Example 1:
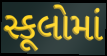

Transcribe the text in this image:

સ્કૂલોમાં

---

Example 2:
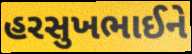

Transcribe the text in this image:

હરસુખભાઈને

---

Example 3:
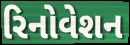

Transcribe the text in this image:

રિનોવેશન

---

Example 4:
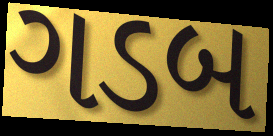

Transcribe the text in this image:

ગડબ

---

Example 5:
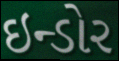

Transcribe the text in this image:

ઇન્ડોર